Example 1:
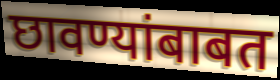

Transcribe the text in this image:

छावण्यांबाबत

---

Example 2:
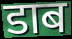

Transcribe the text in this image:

डाब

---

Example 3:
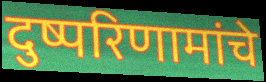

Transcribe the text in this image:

दुष्परिणामांचे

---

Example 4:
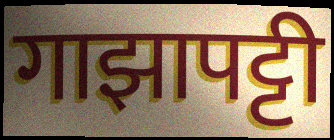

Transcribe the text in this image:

गाझापट्टी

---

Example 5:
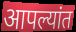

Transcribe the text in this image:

आपल्यांत